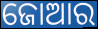
ଜୋଆର